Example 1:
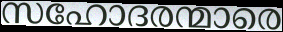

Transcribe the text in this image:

സഹോദരന്മാരെ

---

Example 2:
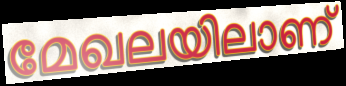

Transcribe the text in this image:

മേഖലയിലാണ്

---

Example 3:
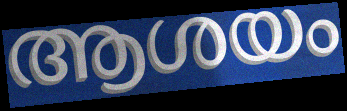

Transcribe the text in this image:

ആശയം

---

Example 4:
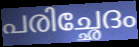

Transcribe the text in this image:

പരിച്ഛേദം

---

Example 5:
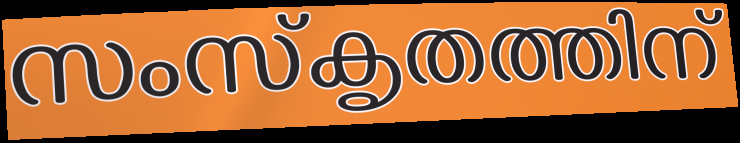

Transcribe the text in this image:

സംസ്‌കൃതത്തിന്